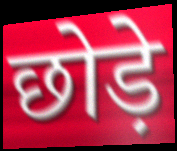
छोड़े